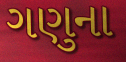
ગણુના